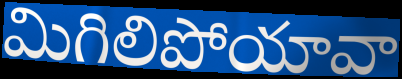
మిగిలిపోయావా